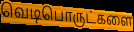
வெடிபொருட்களை